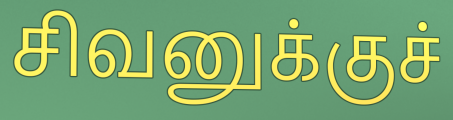
சிவனுக்குச்